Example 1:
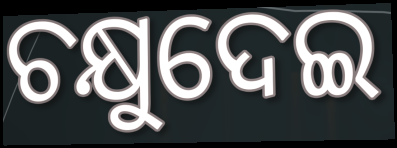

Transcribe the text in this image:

ଚକ୍ଷୁଦେଇ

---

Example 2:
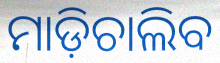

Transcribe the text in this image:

ମାଡ଼ିଚାଲିବ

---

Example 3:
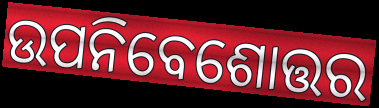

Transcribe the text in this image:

ଉପନିବେଶୋତ୍ତର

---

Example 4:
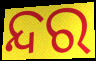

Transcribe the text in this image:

ନ୍ଦର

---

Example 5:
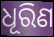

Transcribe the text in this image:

ଧୂରିଣ